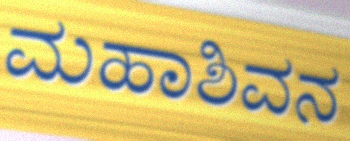
ಮಹಾಶಿವನ